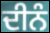
ਦੀਨੰ